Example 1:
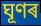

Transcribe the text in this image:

ঘূণৰ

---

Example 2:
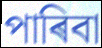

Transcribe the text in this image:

পাৰিবা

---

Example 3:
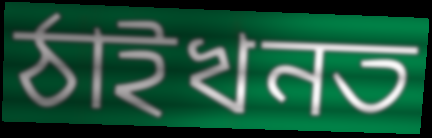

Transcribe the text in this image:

ঠাইখনত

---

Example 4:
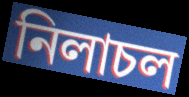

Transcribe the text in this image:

নিলাচল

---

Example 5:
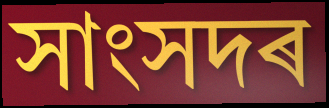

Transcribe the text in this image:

সাংসদৰ